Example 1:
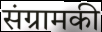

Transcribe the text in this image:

संग्रामकी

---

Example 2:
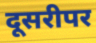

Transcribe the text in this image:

दूसरीपर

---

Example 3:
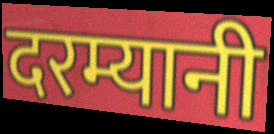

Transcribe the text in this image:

दरम्यानी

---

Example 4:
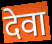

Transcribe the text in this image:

देवा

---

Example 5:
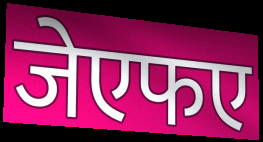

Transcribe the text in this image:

जेएफए